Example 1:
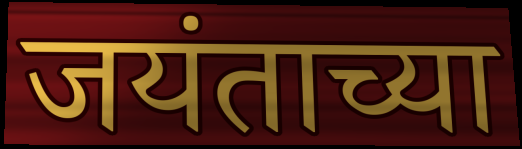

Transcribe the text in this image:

जयंताच्या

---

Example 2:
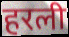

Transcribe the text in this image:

हरली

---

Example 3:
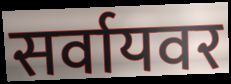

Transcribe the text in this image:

सर्वायवर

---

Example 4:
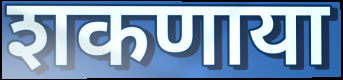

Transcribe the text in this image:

शकणाया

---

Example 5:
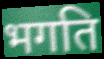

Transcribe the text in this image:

भगति